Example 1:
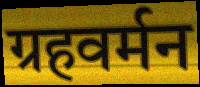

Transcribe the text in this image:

ग्रहवर्मन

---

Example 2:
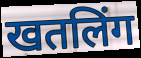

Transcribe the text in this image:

खतलिंग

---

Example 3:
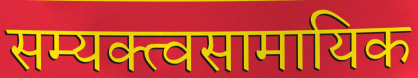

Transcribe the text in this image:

सम्यक्त्वसामायिक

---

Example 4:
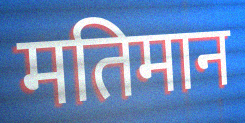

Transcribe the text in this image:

मतिमान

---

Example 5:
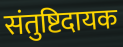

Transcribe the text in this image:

संतुष्टिदायक